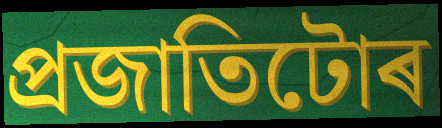
প্ৰজাতিটোৰ